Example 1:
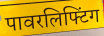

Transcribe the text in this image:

पावरलिफ्टिंग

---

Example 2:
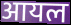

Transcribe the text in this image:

आयल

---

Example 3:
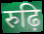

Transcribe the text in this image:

रुढ़ि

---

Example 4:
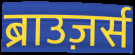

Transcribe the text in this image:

ब्राउज़र्स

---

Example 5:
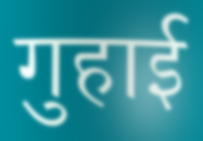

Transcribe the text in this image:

गुहाई